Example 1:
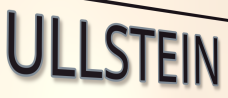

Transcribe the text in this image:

ULLSTEIN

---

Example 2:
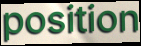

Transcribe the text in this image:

position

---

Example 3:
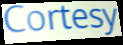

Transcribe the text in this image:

Cortesy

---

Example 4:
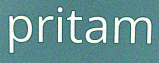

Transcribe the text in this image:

pritam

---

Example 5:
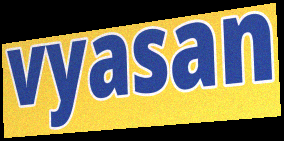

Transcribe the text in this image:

vyasan